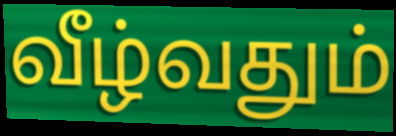
வீழ்வதும்